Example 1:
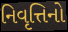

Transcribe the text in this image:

નિવૃત્તિનો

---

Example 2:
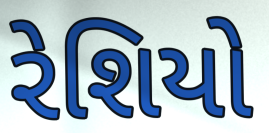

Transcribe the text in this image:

રેશિયો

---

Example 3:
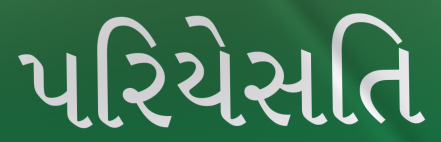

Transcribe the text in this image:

પરિયેસતિ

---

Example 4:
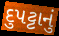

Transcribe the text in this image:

દુપટ્ટાનું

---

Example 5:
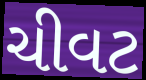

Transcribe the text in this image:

ચીવટ